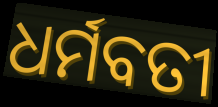
ଧର୍ମବତୀ